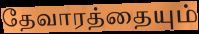
தேவாரத்தையும்